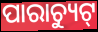
ପାରାଚ୍ୟୁଟ୍